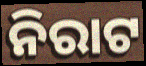
ନିରାଟ